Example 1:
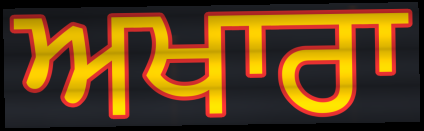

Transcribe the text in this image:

ਅਖਾਰਾ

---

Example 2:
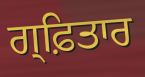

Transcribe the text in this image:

ਗ੍ਫ਼ਿਤਾਰ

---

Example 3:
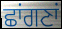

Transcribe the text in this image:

ਛਾਂਗਣਾਂ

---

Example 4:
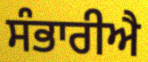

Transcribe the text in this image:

ਸੰਭਾਰੀਐ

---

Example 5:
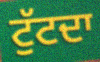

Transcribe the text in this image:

ਟੁੱਟਦਾ